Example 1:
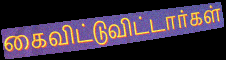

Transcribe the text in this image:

கைவிட்டுவிட்டார்கள்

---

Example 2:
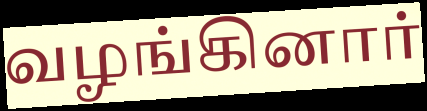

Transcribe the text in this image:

வழங்கினார்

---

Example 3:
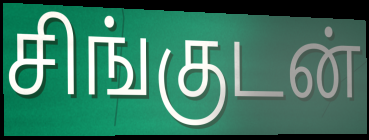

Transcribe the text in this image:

சிங்குடன்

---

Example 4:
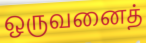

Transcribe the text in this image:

ஒருவனைத்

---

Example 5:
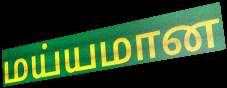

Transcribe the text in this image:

மய்யமான